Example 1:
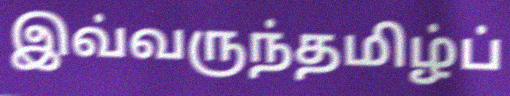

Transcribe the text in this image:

இவ்வருந்தமிழ்ப்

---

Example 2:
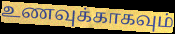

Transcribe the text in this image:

உணவுக்காகவும்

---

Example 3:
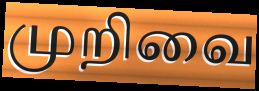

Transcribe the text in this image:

முறிவை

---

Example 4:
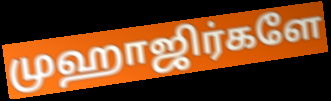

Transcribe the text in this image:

முஹாஜிர்களே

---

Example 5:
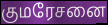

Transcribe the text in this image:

குமரேசனை